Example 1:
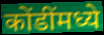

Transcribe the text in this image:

कोंडींमध्ये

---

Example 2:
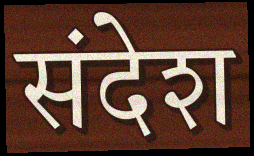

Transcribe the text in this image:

संदेश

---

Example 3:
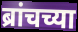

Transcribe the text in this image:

ब्रांचच्या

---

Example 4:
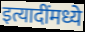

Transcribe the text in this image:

इत्यादींमध्ये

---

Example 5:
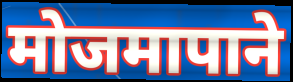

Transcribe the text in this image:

मोजमापाने